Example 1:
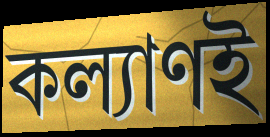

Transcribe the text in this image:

কল্যাণই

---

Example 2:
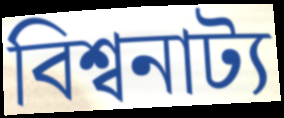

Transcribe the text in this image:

বিশ্বনাট্য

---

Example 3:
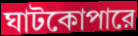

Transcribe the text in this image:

ঘাটকোপারে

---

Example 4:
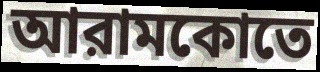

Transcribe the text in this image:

আরামকোতে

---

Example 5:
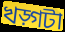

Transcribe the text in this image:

খড়্গটা